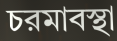
চরমাবস্থা